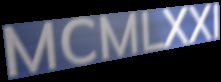
MCMLXXI